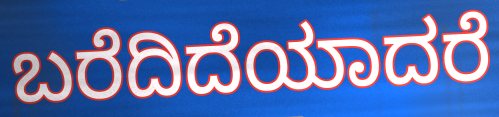
ಬರೆದಿದೆಯಾದರೆ